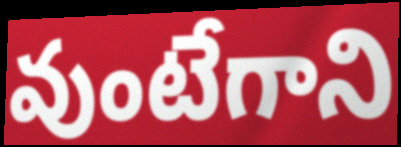
వుంటేగాని